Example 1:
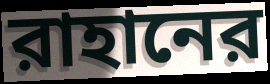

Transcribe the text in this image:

রাহানের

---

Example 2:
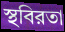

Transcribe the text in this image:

স্থবিরতা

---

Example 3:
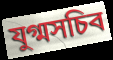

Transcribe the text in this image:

যুগ্মসচিব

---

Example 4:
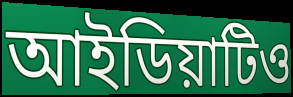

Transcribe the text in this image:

আইডিয়াটিও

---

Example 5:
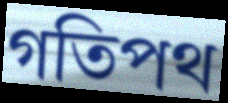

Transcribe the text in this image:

গতিপথ